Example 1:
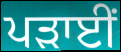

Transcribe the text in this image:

ਪੜਾਈਂ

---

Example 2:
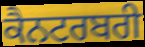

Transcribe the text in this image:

ਕੈਨਟਰਬਰੀ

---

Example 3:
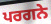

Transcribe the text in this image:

ਪਰਗਨੇ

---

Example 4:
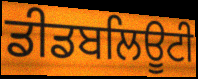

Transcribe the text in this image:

ਡੀਡਬਲਿਊਟੀ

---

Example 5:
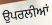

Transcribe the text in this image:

ਉਪਰਲੀਆਂ